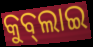
କୁବ୍‌ଲାଇ